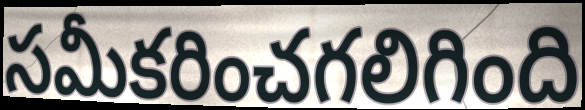
సమీకరించగలిగింది